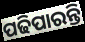
ପଢିପାରନ୍ତି